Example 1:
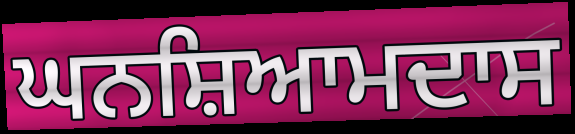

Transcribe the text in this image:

ਘਨਸ਼ਿਆਮਦਾਸ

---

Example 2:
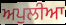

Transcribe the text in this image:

ਅਪੁਲੀਆ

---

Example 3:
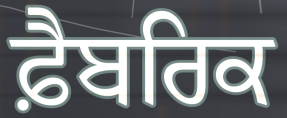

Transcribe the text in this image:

ਫ਼ੈਬਰਿਕ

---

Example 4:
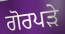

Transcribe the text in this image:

ਗੋਰਪੜੇ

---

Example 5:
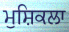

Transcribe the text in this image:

ਮੁਸ਼ਿਕਲਾ